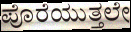
ಪೊರೆಯುತ್ತಲೇ